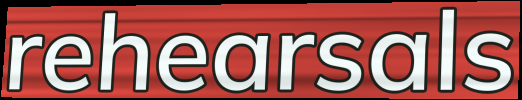
rehearsals